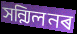
সন্মিলনৰ